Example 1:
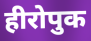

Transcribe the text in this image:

हीरोपुक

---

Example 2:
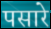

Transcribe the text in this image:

पसारे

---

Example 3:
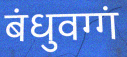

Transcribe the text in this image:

बंधुवग्गं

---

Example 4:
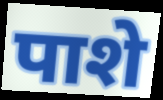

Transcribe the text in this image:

पाशे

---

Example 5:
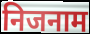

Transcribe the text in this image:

निजनाम